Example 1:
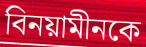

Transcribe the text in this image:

বিনয়ামীনকে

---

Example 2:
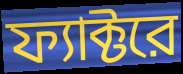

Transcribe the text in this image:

ফ্যাক্টরে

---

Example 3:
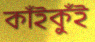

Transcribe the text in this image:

কাঁইকুঁই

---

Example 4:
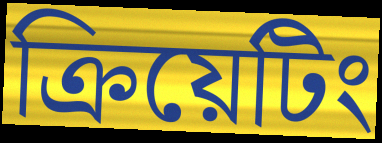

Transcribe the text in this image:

ক্রিয়েটিং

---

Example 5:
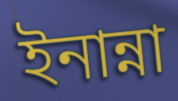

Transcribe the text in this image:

ইনান্না